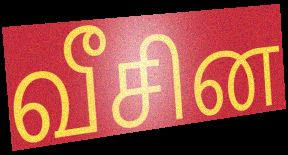
வீசின